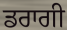
ਡਰਾਗੀ